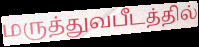
மருத்துவபீடத்தில்